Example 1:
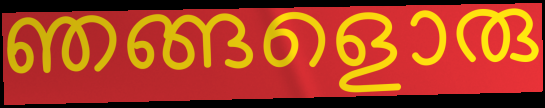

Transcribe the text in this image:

ഞങ്ങളൊരു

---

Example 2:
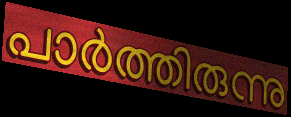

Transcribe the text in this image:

പാർത്തിരുന്നു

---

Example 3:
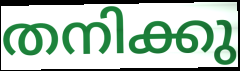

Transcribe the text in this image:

തനിക്കു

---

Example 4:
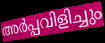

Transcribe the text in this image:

അർപ്പവിളിച്ചും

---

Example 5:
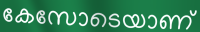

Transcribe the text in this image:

കേസോടെയാണ്